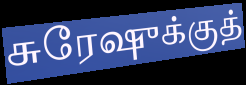
சுரேஷுக்குத்